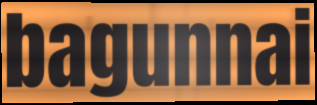
bagunnai